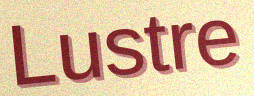
Lustre